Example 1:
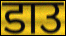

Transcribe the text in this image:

डाउ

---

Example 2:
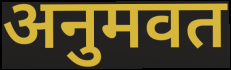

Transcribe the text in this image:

अनुमवत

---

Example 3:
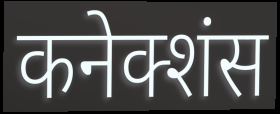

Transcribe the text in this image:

कनेक्शंस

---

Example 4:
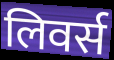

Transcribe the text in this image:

लिवर्स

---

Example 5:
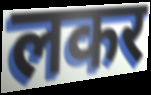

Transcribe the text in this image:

लकर